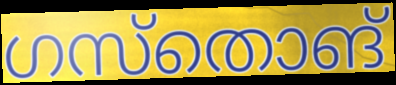
ഗസ്തൊങ്